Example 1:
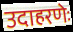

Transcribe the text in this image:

उदाहरणेः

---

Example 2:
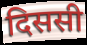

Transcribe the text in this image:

दिससी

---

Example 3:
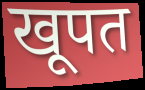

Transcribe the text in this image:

खूपत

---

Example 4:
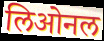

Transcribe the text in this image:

लिओनल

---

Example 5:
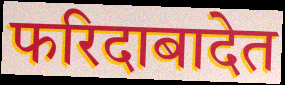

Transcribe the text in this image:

फरिदाबादेत